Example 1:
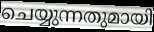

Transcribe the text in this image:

ചെയ്യുന്നതുമായി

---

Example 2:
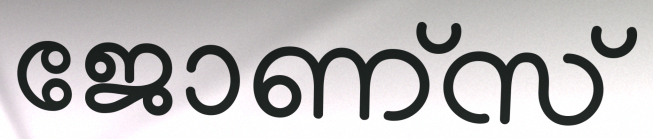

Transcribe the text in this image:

ജോണ്സ്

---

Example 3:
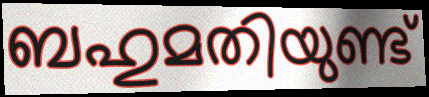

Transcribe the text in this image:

ബഹുമതിയുണ്ട്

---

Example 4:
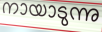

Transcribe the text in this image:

നായാടുന്നു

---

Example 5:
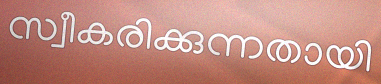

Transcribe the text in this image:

സ്വീകരിക്കുന്നതായി